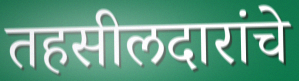
तहसीलदारांचे